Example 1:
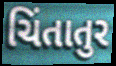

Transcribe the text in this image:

ચિંતાતુર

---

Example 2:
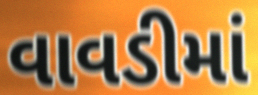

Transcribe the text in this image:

વાવડીમાં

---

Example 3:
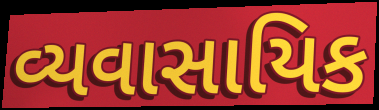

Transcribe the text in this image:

વ્યવાસાયિક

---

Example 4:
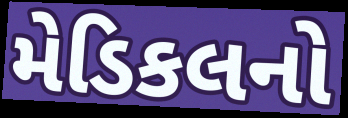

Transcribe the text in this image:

મેડિકલનો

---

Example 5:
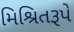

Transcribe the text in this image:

મિશ્રિતરૂપે